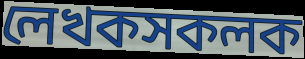
লেখকসকলক